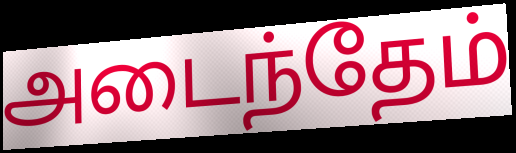
அடைந்தேம்